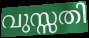
വുസ്സതി